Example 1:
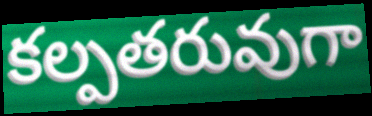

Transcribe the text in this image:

కల్పతరువుగా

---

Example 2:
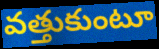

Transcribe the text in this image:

వత్తుకుంటూ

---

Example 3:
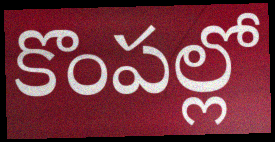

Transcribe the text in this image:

కొంపల్లో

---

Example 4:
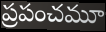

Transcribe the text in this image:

ప్రపంచమూ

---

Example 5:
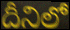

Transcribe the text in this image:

దీనిలో